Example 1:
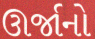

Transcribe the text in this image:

ઊર્જાનો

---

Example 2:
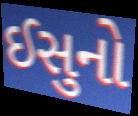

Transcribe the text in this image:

ઈસુનો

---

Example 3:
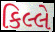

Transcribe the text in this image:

કિલ્લે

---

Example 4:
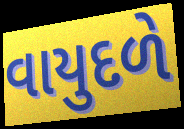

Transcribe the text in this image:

વાયુદળે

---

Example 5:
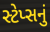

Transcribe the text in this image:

સ્ટેપ્સનું